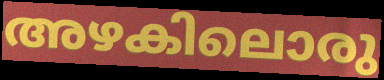
അഴകിലൊരു